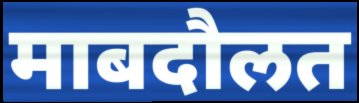
माबदौलत